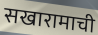
सखारामाची